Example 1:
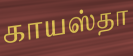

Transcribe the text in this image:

காயஸ்தா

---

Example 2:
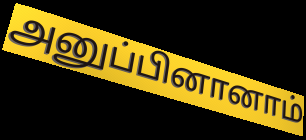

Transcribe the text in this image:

அனுப்பினானாம்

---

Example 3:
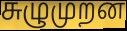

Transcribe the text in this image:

சுழுமுறன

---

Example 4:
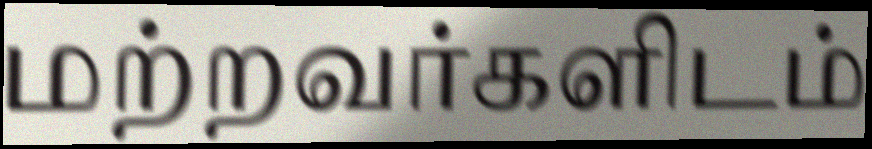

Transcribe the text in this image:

மற்றவர்களிடம்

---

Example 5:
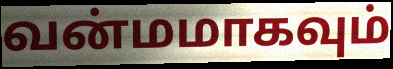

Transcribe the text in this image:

வன்மமாகவும்